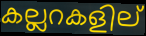
കല്ലറകളില്